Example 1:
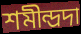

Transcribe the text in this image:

শমীন্দ্রদা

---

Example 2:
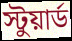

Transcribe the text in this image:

স্টুয়ার্ড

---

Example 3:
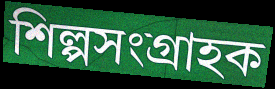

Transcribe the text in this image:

শিল্পসংগ্রাহক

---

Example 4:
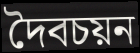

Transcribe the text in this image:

দৈবচয়ন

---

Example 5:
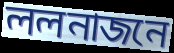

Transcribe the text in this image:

ললনাজনে